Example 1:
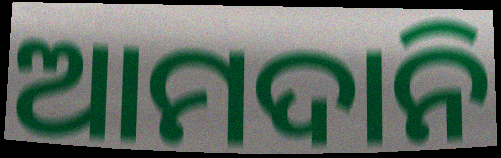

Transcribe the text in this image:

ଆମଦାନି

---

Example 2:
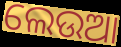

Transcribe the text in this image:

ଲେଉଆ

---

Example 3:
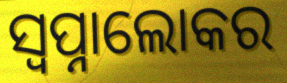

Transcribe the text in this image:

ସ୍ୱପ୍ନାଲୋକର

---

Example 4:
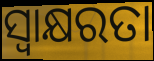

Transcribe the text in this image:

ସ୍ବାକ୍ଷରତା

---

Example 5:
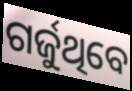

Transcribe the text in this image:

ଗର୍ଜୁଥିବେ